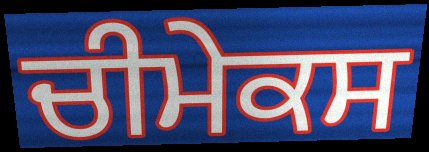
ਚੀਮੇਕਸ